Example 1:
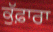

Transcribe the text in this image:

ਕੁੱਫ਼ਾਰਾ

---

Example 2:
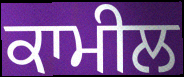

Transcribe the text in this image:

ਕਾਮੀਲ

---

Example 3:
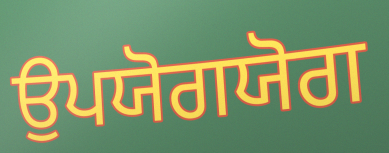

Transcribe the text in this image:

ਉਪਯੋਗਯੋਗ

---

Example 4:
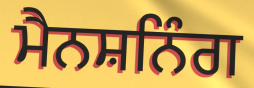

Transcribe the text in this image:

ਮੈਨਸ਼ਨਿੰਗ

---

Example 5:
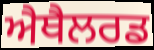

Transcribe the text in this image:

ਐਥੈਲਰਡ